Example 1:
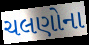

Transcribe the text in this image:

ચલણોના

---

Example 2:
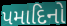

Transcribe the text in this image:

પમાદિનો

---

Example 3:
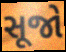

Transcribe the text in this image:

સૂજો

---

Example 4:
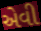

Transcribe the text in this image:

એવી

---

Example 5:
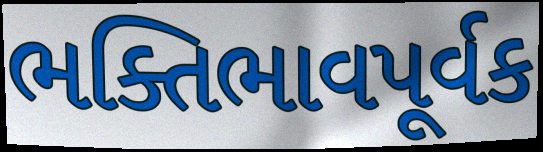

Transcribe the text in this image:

ભક્તિભાવપૂર્વક